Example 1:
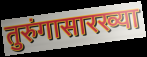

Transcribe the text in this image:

तुरुंगासारख्या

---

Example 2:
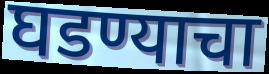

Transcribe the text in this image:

घडण्याचा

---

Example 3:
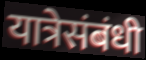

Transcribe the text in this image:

यात्रेसंबंधी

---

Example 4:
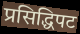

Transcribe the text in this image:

प्रसिद्धिपट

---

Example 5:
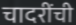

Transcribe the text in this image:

चादरींची